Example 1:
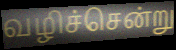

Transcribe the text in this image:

வழிச்சென்று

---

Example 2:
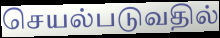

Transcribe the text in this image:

செயல்படுவதில்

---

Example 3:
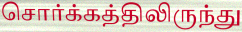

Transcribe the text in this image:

சொர்க்கத்திலிருந்து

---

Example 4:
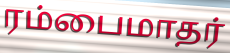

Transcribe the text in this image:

ரம்பைமாதர்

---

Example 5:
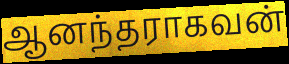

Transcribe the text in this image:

ஆனந்தராகவன்